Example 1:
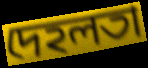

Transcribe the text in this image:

দেহলতা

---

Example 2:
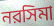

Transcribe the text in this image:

নরসিমা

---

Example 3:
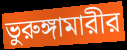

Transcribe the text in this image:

ভুরুঙ্গামারীর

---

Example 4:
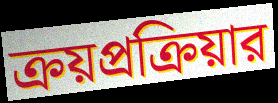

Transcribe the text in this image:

ক্রয়প্রক্রিয়ার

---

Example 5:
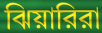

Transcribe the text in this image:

ঝিয়ারিরা